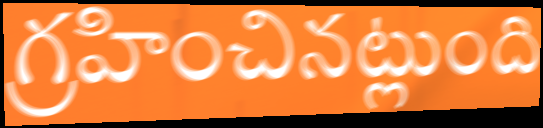
గ్రహించినట్లుంది